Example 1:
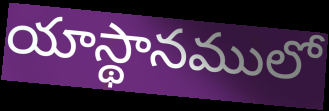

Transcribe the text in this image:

యాస్థానములో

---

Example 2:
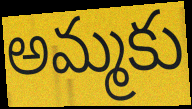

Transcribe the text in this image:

అమ్మకు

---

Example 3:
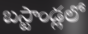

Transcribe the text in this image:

బస్టాండ్లలో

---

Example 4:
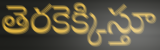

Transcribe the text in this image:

తెరకెక్కిస్తూ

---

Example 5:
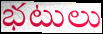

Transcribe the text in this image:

భటులు